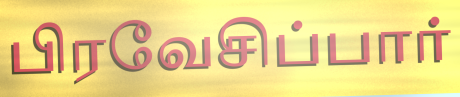
பிரவேசிப்பார்